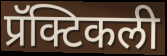
प्रॅक्टिकली